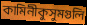
কামিনীকুসুমগুলি